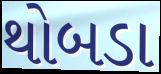
થોબડા